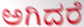
ಅಗಿದರೆ